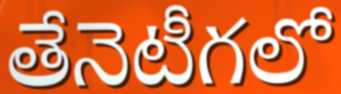
తేనెటీగలో